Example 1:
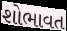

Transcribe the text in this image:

શોભાવત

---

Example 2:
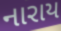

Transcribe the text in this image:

નારાય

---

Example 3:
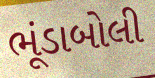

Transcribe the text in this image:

ભૂંડાબોલી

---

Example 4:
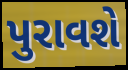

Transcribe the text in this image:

પુરાવશે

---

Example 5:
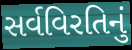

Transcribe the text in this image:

સર્વવિરતિનું